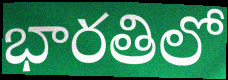
భారతిలో